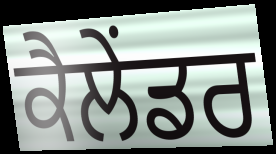
ਕੈਲੇਂਡਰ